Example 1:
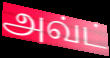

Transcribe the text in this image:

அவ்ட்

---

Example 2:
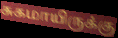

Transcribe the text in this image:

சுகமாயிருக்கு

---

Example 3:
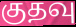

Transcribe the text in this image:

குதவு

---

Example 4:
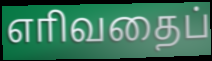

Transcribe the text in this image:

எரிவதைப்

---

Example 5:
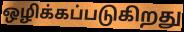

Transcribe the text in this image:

ஒழிக்கப்படுகிறது